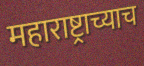
महाराष्ट्राच्याच